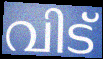
വിട്